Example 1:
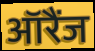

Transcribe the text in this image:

ऑरैंज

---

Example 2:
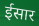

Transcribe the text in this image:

ईसार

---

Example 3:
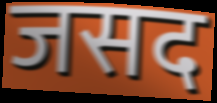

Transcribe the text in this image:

जसद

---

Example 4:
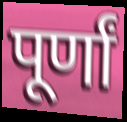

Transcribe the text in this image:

पूर्णां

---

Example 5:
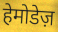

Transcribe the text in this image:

हेमोडेज़